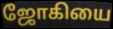
ஜோகியை